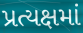
પ્રત્‍યક્ષમાં